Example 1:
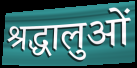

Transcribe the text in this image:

श्रद्धालुओं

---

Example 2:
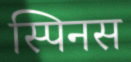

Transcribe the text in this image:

स्पिनस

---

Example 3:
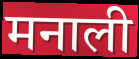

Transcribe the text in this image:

मनाली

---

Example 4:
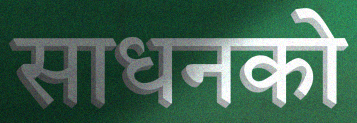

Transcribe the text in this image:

साधनको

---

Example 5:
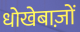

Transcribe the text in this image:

धोखेबाज़ों